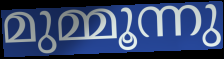
മുമ്മൂന്നു